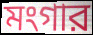
মংগার